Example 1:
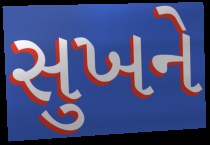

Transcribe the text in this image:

સુખને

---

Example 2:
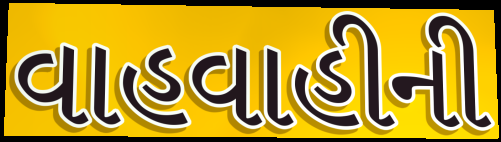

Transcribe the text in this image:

વાહવાહીની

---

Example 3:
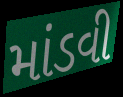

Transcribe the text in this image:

માંડવી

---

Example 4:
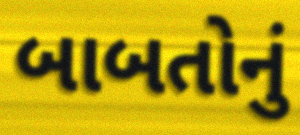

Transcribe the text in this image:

બાબતોનું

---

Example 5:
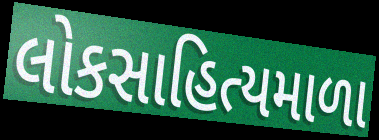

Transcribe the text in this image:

લોકસાહિત્યમાળા